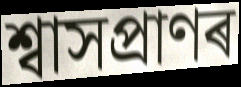
শ্বাসপ্ৰাণৰ